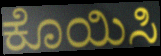
ಕೊಯಿಸಿ